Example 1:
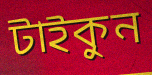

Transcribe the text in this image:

টাইকুন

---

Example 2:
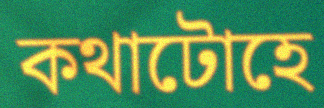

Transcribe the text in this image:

কথাটোহে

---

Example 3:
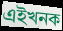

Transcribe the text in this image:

এইখনক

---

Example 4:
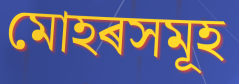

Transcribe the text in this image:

মোহৰসমূহ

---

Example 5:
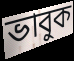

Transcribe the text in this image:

ভাবুক